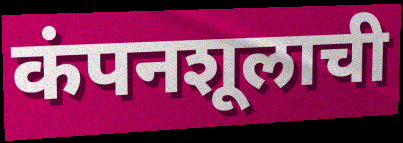
कंपनशूलाची